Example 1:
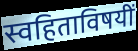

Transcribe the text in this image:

स्वहिताविषयीं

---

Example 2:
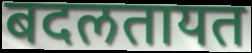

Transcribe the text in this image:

बदलतायत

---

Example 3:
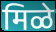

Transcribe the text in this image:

मिळे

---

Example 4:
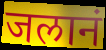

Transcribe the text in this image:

जलानं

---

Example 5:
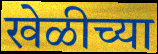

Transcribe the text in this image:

खेळीच्या